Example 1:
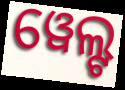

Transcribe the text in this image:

ୱେଲ୍ଟ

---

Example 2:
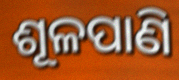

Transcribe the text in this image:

ଶୂଳପାଣି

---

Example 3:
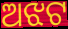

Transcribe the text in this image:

ଅଝଟ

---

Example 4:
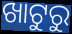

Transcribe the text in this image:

ଖାଟୁରୁ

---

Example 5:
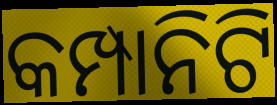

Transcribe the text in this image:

କମ୍ପାନିଟି